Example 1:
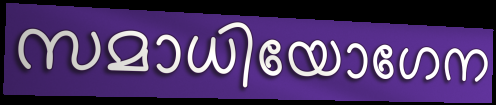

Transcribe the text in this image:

സമാധിയോഗേന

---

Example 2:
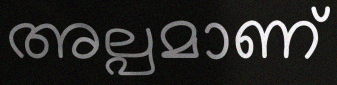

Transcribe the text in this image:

അല്പമാണ്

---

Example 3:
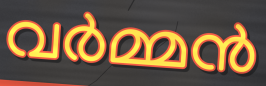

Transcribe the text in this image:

വർമ്മൻ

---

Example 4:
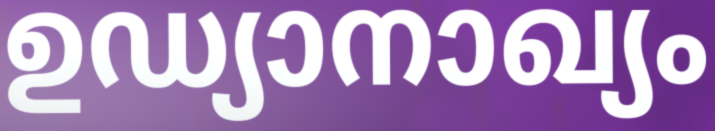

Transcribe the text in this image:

ഉഡ്യാനാഖ്യം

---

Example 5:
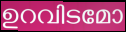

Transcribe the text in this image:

ഉറവിടമോ